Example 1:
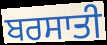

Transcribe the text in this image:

ਬਰਸਾਤੀ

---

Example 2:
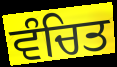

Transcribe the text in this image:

ਵੰਚਿਤ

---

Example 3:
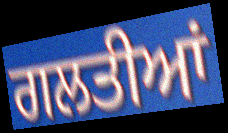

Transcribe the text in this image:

ਗਲਤੀਆਂ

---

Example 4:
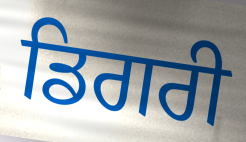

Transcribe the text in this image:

ਡਿਗਰੀ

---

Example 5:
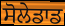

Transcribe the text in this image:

ਸੋਲੇਡਾਡ